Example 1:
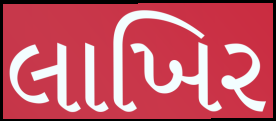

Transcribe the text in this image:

લાખિર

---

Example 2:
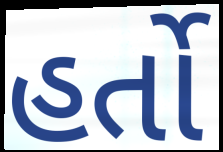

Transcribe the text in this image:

હર્તો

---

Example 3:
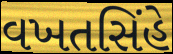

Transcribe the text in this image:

વખતસિંહે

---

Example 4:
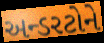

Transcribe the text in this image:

અન્ડરટોને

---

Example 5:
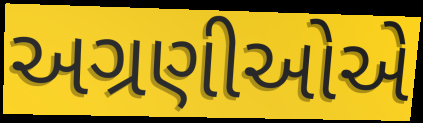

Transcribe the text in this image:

અગ્રણીઓએ